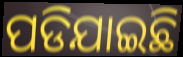
ପଡିଯାଇଛି